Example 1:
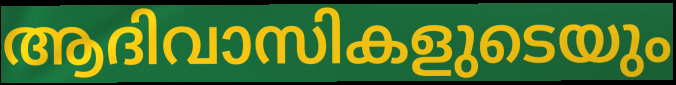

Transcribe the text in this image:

ആദിവാസികളുടെയും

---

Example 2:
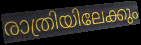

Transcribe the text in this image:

രാത്രിയിലേക്കും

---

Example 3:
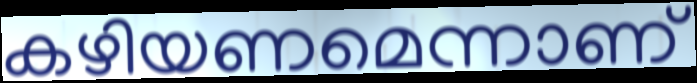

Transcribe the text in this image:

കഴിയണമെന്നാണ്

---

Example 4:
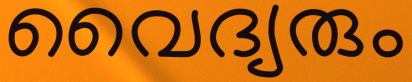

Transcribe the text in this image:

വൈദ്യരും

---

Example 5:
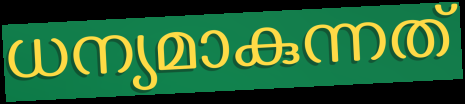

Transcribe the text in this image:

ധന്യമാകുന്നത്